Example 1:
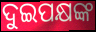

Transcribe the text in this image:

ଦୁଇପକ୍ଷଙ୍କ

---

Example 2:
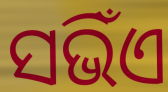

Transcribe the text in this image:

ସଭିଁଏ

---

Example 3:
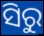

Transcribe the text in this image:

ସିରୁ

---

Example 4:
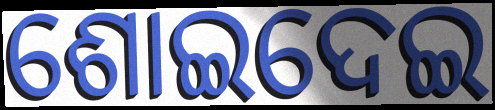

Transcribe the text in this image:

ଶୋଇଦେଇ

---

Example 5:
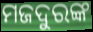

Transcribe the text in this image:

ମଜଦୁରଙ୍କ